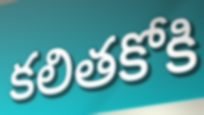
కలితకోకి